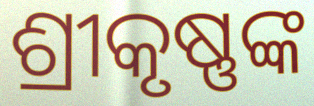
ଶ୍ରୀକୃଷ୍ଣଙ୍କ